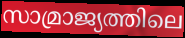
സാമ്രാജ്യത്തിലെ